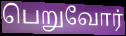
பெறுவோர்